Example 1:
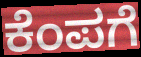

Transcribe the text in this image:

ಕೆಂಪಗೆ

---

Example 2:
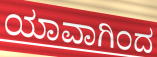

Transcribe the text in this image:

ಯಾವಾಗಿಂದ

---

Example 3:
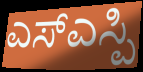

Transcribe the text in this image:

ಎಸ್ಎಸ್ಪಿ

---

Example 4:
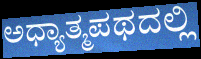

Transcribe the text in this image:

ಅಧ್ಯಾತ್ಮಪಥದಲ್ಲಿ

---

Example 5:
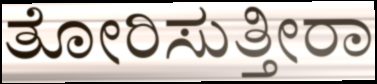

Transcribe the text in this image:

ತೋರಿಸುತ್ತೀರಾ